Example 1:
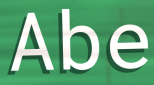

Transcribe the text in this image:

Abe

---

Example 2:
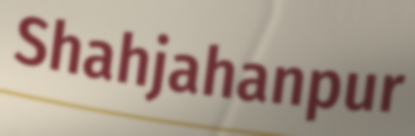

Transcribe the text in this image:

Shahjahanpur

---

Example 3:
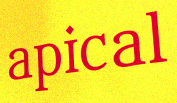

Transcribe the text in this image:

apical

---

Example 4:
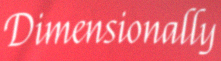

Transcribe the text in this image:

Dimensionally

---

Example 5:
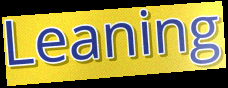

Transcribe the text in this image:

Leaning